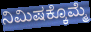
ನಿಮಿಷಕ್ಕೊಮ್ಮೆ